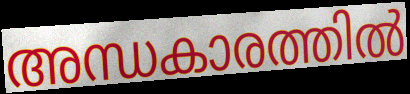
അന്ധകാരത്തിൽ